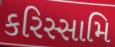
કરિસ્સામિ